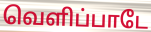
வெளிப்பாடே